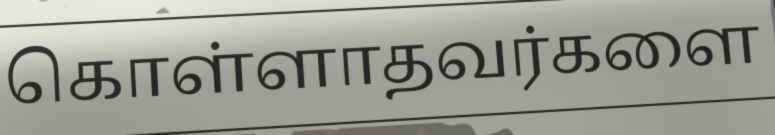
கொள்ளாதவர்களை